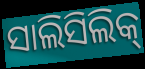
ସାଲିସିଲିକ୍